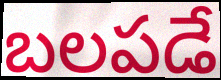
బలపడే